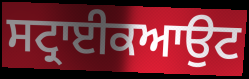
ਸਟ੍ਰਾਈਕਆਉਟ